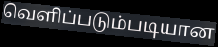
வெளிப்படும்படியான